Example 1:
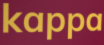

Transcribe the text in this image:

kappa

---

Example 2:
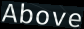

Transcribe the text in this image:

Above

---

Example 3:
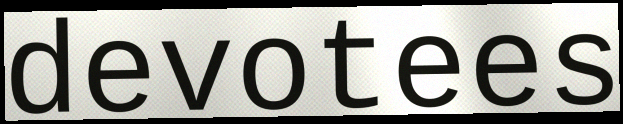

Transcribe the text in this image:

devotees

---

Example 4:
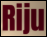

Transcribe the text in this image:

Riju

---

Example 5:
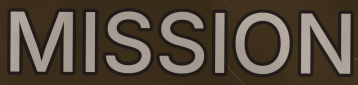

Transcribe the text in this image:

MISSION